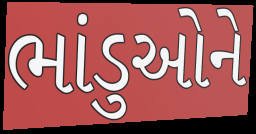
ભાંડુઓને